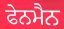
ਫੇਨਮੈਨ